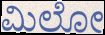
ಮಿಲೋ